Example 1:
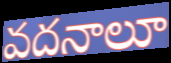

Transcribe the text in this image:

వదనాలూ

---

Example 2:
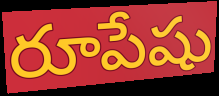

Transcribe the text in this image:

రూపేషు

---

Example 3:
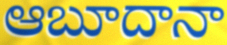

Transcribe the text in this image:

ఆబూదానా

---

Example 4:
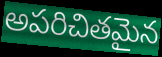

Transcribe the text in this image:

అపరిచితమైన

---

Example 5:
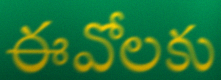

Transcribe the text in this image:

ఈవోలకు